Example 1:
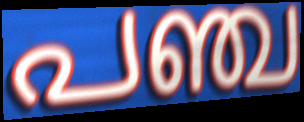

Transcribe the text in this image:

പഞ്ച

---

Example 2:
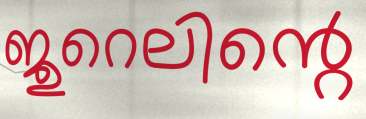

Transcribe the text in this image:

ജുറെലിന്റെ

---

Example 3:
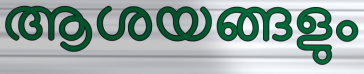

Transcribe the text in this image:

ആശയങ്ങളും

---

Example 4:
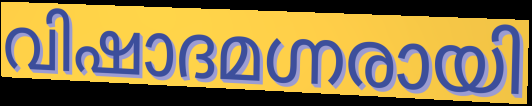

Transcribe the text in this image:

വിഷാദമഗ്നരായി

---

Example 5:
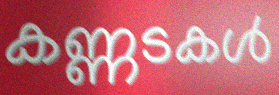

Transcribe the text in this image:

കണ്ണടകൾ